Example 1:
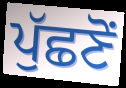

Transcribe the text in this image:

ਪੁੱਛਣੋਂ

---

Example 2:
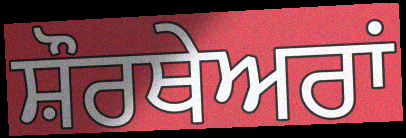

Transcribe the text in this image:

ਸ਼ੌਰਥੇਅਰਾਂ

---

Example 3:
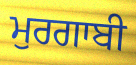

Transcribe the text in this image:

ਮੁਰਗਾਬੀ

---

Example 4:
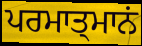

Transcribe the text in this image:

ਪਰਮਾਤ੍ਮਾਨਂ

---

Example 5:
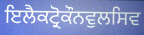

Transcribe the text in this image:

ਇਲੈਕਟ੍ਰੋਕੌਨਵੁਲਸਿਵ